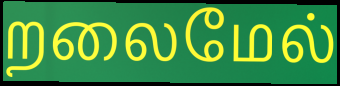
றலைமேல்